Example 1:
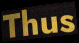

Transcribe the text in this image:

Thus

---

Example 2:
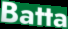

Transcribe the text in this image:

Batta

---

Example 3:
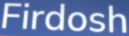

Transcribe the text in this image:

Firdosh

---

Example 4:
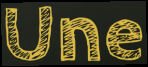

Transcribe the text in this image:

Une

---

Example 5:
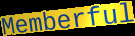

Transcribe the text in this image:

Memberful